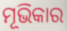
ମୂଭିକାର